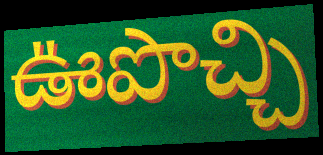
ఊపొచ్చి